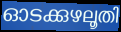
ഓടക്കുഴലൂതി